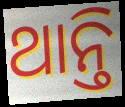
ଥାନ୍ତି